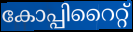
കോപ്പിറൈറ്റ്